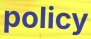
policy